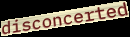
disconcerted